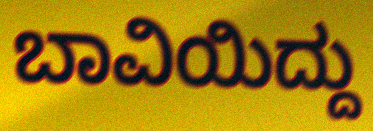
ಬಾವಿಯಿದ್ದು